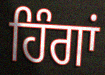
ਹਿੰਗਾਂ